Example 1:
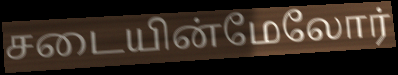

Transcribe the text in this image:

சடையின்மேலோர்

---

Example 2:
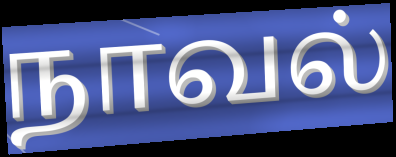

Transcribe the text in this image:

நாவல்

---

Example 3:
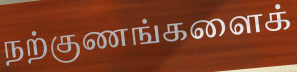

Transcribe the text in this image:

நற்குணங்களைக்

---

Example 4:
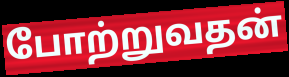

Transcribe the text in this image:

போற்றுவதன்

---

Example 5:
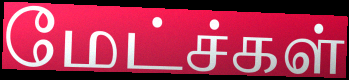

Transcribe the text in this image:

மேட்ச்கள்